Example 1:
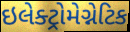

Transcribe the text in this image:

ઇલેક્ટ્રોમેગ્નેટિક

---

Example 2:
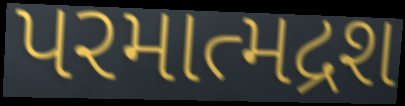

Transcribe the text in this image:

પરમાત્મદ્રશ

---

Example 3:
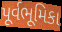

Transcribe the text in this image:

પૂર્વભૂમિકા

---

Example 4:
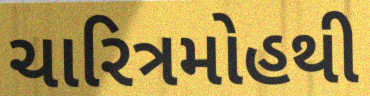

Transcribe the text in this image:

ચારિત્રમોહથી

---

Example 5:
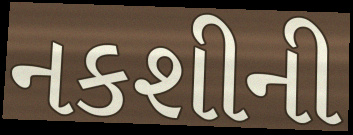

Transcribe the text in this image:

નકશીની